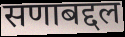
सणाबद्दल